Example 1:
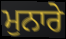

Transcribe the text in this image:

ਮੁਨਾਰੇ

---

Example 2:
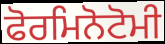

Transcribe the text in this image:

ਫੋਰਮਿਨੋਟੋਮੀ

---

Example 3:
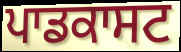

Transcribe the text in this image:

ਪਾਡਕਾਸਟ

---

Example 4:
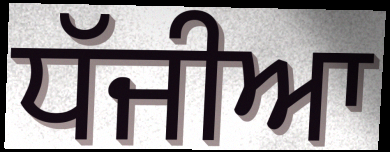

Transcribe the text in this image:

ਧੱਜੀਆ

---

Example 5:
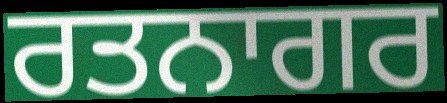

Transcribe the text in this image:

ਰਤਨਾਗਰ